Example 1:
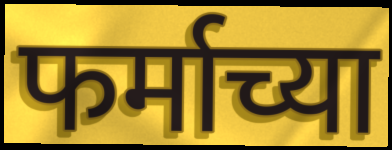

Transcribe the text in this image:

फर्माच्या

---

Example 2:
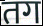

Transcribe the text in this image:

तग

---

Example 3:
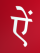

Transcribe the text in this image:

ऐं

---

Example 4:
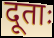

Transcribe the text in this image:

दूताः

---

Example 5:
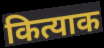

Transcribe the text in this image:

कित्याक